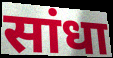
सांधा